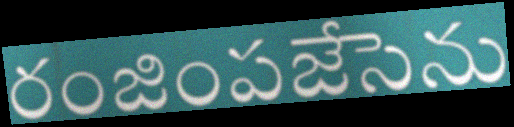
రంజింపజేసెను